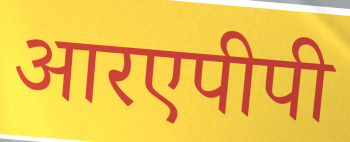
आरएपीपी